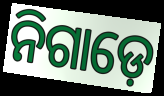
ନିଗାଡ଼େ